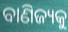
ବାଣିଜ୍ୟକୁ